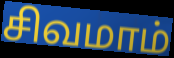
சிவமாம்